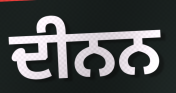
ਦੀਨਨ